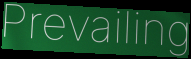
Prevailing